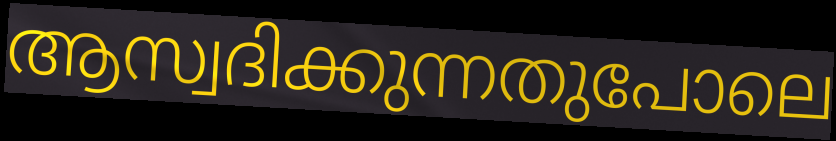
ആസ്വദിക്കുന്നതുപോലെ